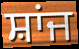
ਸ਼ਾਂਜ